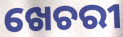
ଖେଚରୀ